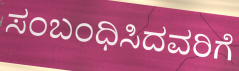
ಸಂಬಂಧಿಸಿದವರಿಗೆ